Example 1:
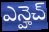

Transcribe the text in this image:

ఎన్హెచ్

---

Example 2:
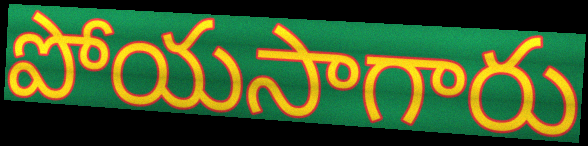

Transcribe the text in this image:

పోయసాగారు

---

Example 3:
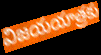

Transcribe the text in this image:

విజయయాత్రకు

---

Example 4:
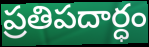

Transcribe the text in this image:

ప్రతిపదార్ధం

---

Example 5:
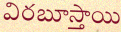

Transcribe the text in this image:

విరబూస్తాయి